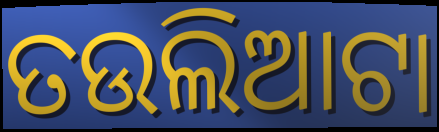
ତଉଲିଆଟା